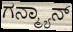
ಗನ್ಮ್ಯಾನ್